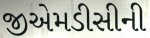
જીએમડીસીની